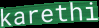
karethi